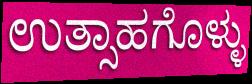
ಉತ್ಸಾಹಗೊಳ್ಳು